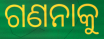
ଗଣନାକୁ